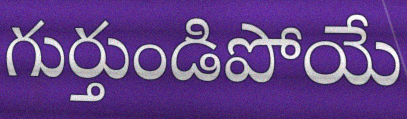
గుర్తుండిపోయే